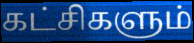
கட்சிகளும்